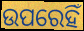
ଉପରେହିଁ